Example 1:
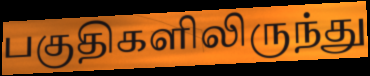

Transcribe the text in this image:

பகுதிகளிலிருந்து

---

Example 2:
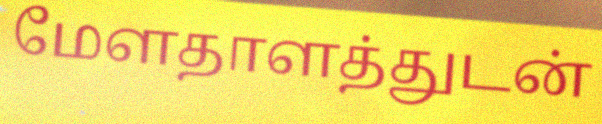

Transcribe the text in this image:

மேளதாளத்துடன்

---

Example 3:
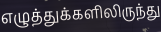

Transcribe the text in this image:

எழுத்துக்களிலிருந்து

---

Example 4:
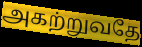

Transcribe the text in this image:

அகற்றுவதே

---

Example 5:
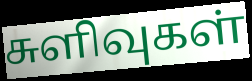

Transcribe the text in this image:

சுளிவுகள்